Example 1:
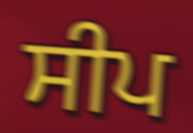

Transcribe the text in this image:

ਸੀਪ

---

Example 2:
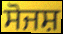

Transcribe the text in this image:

ਸੋਜਸ਼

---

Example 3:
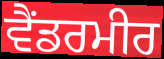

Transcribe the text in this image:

ਵੈਂਡਰਮੀਰ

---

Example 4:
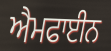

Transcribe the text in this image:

ਐਮਫਾਈਨ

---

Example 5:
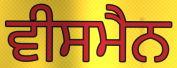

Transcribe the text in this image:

ਵੀਸਮੈਨ